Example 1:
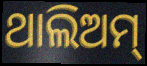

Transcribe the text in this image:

ଥାଲିଅମ୍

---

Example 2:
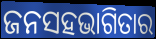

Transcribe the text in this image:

ଜନସହଭାଗିତାର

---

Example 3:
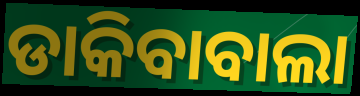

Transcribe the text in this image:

ଡାକିବାବାଲା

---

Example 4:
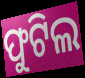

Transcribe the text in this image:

ଫୁଟିଲ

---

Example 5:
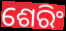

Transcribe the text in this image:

ଶେରିଂ